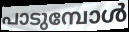
പാടുമ്പോൾ